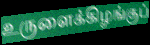
உருளைக்கிழங்குப்